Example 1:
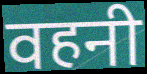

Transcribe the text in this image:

वहनी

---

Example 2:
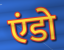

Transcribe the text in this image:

एंडो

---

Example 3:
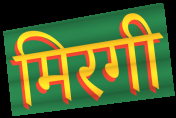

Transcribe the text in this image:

मिरगी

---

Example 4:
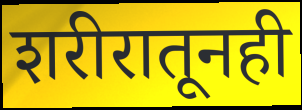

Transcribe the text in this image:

शरीरातूनही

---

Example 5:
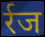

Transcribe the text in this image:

र्रज